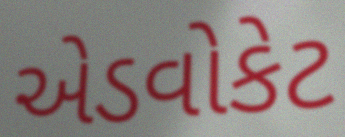
એડવોકેટ